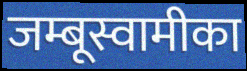
जम्बूस्वामीका